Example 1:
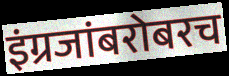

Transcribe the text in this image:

इंग्रजांबरोबरच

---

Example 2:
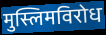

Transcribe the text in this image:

मुस्लिमविरोध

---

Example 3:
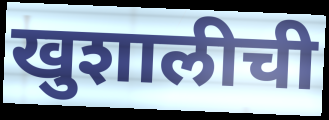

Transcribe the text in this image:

खुशालीची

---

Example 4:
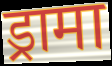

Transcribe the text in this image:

ड्रामा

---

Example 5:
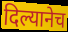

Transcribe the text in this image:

दिल्यानेच